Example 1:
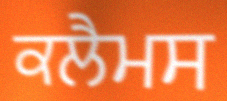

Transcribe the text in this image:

ਕਲੈਮਸ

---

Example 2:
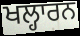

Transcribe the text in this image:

ਖਲ੍ਹਾਰਨ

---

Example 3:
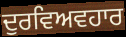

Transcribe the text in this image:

ਦੁਰਵਿਅਵਹਾਰ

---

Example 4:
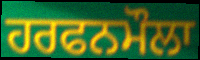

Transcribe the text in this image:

ਹਰਫਨਮੌਲਾ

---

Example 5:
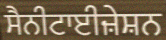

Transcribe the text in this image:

ਸੈਨੀਟਾਈਜ਼ੇਸ਼ਨ